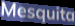
Mesquita